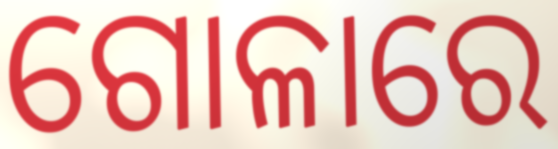
ଗୋଳାରେ